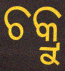
ଚକ୍ରୁ